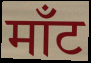
माँट